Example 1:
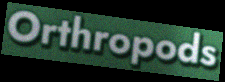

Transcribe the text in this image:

Orthropods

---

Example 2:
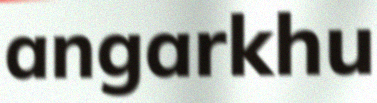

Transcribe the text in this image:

angarkhu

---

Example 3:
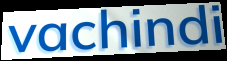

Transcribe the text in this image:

vachindi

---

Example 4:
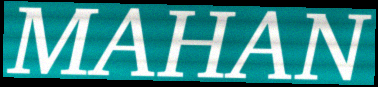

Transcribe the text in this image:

MAHAN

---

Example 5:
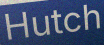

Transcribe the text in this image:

Hutch